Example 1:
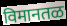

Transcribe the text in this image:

विमानतळ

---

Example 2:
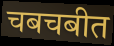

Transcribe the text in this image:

चबचबीत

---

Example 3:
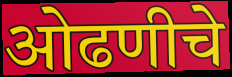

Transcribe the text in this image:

ओढणीचे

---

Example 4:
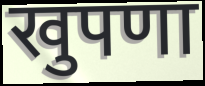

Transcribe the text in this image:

खुपणा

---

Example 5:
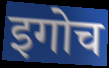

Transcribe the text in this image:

इगोच